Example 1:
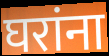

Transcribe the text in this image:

घरांना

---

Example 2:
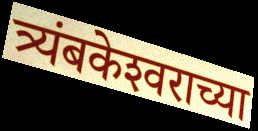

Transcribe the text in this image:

त्र्यंबकेश्‍वराच्या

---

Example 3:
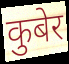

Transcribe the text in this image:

कुबेर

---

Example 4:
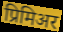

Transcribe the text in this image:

प्रिमिअर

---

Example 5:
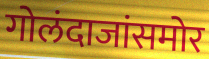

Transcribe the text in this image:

गोलंदाजांसमोर